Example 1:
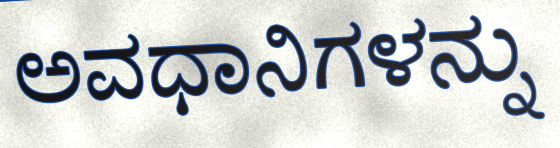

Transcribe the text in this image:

ಅವಧಾನಿಗಳನ್ನು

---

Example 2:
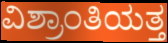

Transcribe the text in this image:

ವಿಶ್ರಾಂತಿಯತ್ತ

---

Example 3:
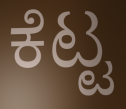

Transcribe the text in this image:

ಕೆಟ್ಟ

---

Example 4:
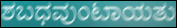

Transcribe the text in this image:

ಶಬಧವುಂಟಾಯತು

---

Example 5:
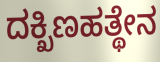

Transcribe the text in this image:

ದಕ್ಖಿಣಹತ್ಥೇನ